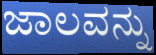
ಜಾಲವನ್ನು